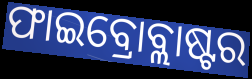
ଫାଇବ୍ରୋବ୍ଲାଷ୍ଟର